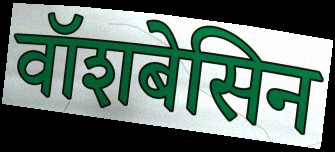
वॉशबेसिन